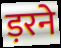
ड़रने